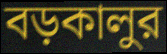
বড়কালুর